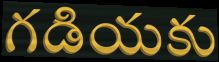
గడియకు